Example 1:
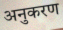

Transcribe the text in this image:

अनुकरण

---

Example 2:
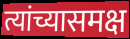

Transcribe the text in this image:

त्यांच्यासमक्ष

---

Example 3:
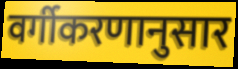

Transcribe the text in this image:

वर्गीकरणानुसार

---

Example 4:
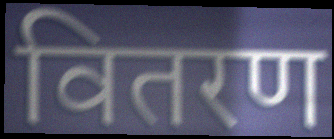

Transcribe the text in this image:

वितरण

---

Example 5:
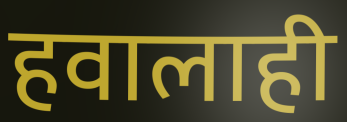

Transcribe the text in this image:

हवालाही